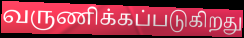
வருணிக்கப்படுகிறது